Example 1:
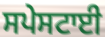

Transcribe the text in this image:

ਸਪੇਸਟਾਈ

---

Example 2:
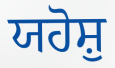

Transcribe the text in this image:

ਯਹੋਸ਼ੁ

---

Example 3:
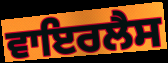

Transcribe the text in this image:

ਵਾਇਰਲੈਸ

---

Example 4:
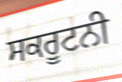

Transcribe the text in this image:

ਸਕਰੂਟਨੀ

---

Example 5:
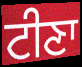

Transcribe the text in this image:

ਟੀਣਾ